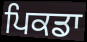
ਪਿਕਡਾ